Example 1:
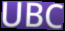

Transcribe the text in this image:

UBC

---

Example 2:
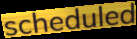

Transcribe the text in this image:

scheduled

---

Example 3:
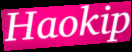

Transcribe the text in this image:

Haokip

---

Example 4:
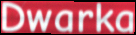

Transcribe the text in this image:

Dwarka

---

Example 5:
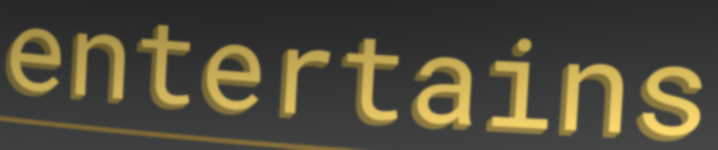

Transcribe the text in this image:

entertains